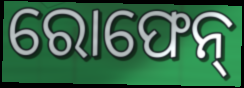
ରୋଫେନ୍